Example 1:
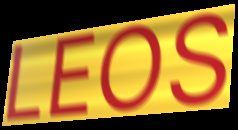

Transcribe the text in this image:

LEOS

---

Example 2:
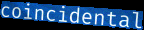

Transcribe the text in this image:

coincidental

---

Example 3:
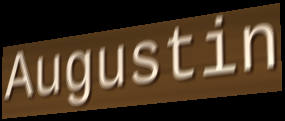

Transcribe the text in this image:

Augustin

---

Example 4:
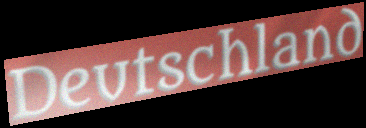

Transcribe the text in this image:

Deutschland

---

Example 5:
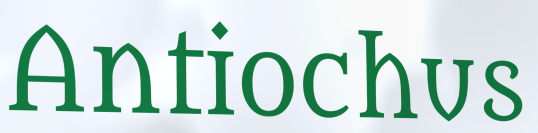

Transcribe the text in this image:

Antiochus